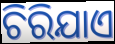
ଚିରିଯାଏ